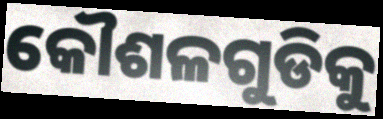
କୌଶଳଗୁଡିକୁ